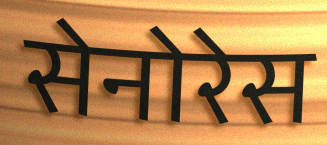
सेनोरेस